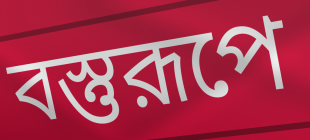
বস্তুরূপে